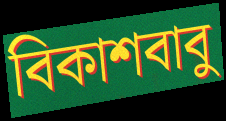
বিকাশবাবু